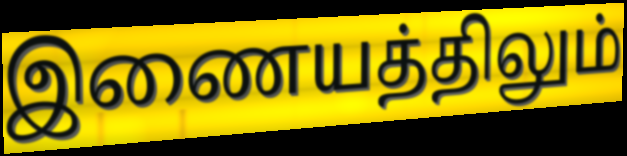
இணையத்திலும்